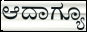
ಆದಾಗ್ಯೂ